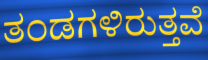
ತಂಡಗಳಿರುತ್ತವೆ